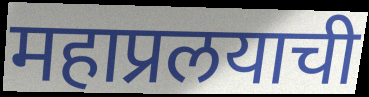
महाप्रलयाची